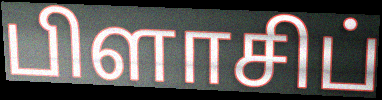
பிளாசிப்